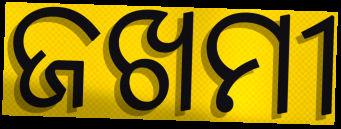
ଜଖମୀ